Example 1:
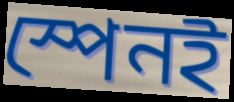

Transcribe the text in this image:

স্পেনই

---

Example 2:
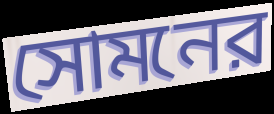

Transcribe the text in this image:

সোমনের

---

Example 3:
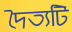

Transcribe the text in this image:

দৈত্যটি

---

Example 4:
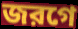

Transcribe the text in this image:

জরগে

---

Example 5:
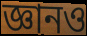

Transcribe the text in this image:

জ্ঞানও